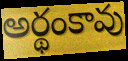
అర్థంకావు